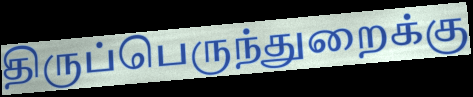
திருப்பெருந்துறைக்கு